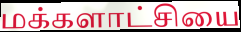
மக்களாட்சியை